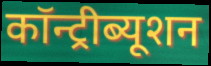
कॉन्ट्रीब्यूशन